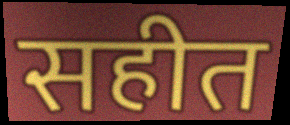
सहीत